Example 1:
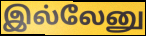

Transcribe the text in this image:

இல்லேனு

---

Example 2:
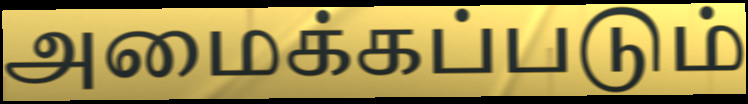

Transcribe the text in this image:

அமைக்கப்படும்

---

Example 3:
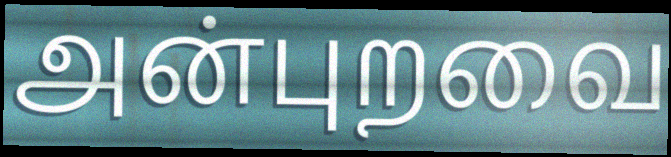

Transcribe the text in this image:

அன்புறவை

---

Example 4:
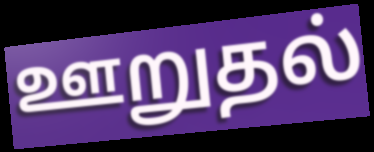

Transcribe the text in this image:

ஊறுதல்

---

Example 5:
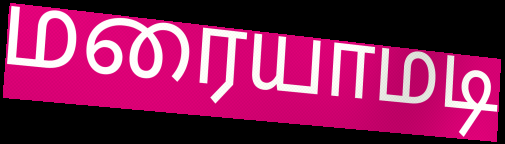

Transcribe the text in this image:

மரையாமடி